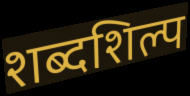
शब्दशिल्प